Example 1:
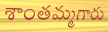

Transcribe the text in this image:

శాంతమ్మగారు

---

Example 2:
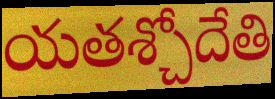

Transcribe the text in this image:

యతశ్చోదేతి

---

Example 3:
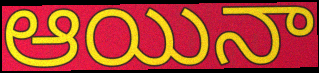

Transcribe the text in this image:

ఆయినా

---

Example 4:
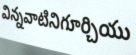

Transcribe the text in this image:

విన్నవాటినిగూర్చియు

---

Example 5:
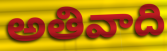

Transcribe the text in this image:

అతివాది